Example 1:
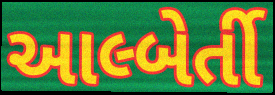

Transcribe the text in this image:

આલ્બેર્તી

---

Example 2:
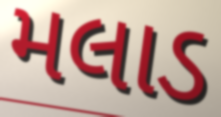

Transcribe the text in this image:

મલાડ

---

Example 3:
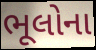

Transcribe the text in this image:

ભૂલોના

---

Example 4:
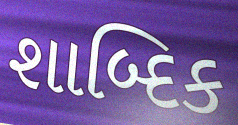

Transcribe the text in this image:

શાબ્દિક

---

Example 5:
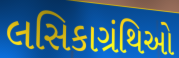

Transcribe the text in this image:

લસિકાગ્રંથિઓ